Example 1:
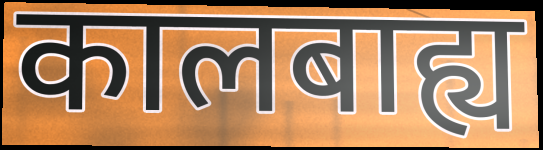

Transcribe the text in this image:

कालबाह्य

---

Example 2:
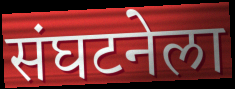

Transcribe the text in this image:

संघटनेला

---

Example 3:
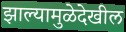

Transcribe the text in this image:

झाल्यामुळेदेखील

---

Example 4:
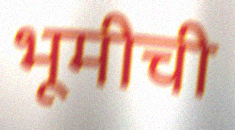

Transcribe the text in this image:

भूमीची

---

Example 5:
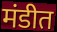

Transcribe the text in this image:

मंडीत